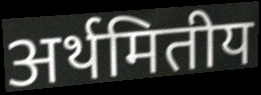
अर्थमितीय